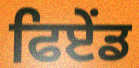
ਫਿਏਂਡ